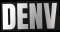
DENV